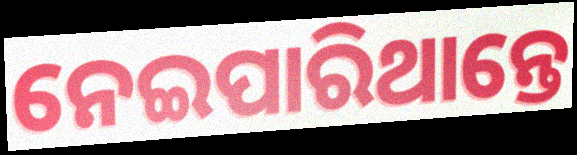
ନେଇପାରିଥାନ୍ତେ